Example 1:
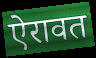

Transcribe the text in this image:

ऐरावत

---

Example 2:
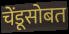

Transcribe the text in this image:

चेंडूसोबत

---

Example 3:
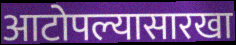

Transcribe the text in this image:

आटोपल्यासारखा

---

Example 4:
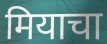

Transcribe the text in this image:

मियाचा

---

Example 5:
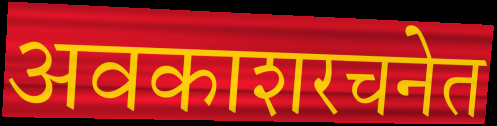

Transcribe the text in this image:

अवकाशरचनेत